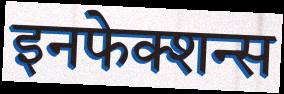
इनफेक्शन्स